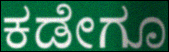
ಕಡೇಗೂ